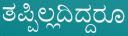
ತಪ್ಪಿಲ್ಲದಿದ್ದರೂ